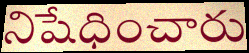
నిషేధించారు